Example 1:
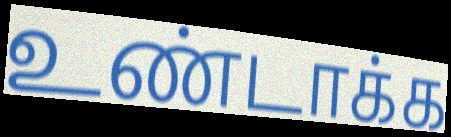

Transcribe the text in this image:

உண்டாக்க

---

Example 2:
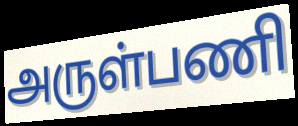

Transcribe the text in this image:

அருள்பணி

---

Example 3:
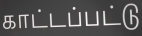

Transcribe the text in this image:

காட்டப்பட்டு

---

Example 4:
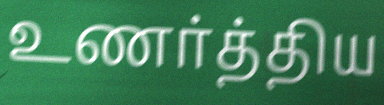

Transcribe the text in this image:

உணர்த்திய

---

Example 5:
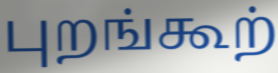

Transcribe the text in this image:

புறங்கூற்